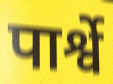
पार्श्वे